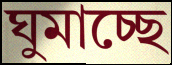
ঘুমাচ্ছে